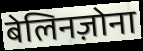
बेलिनज़ोना